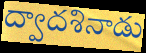
ద్వాదశినాడు